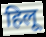
हिलू